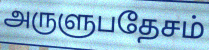
அருளுபதேசம்